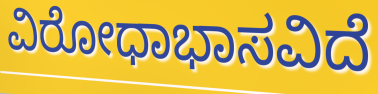
ವಿರೋಧಾಭಾಸವಿದೆ